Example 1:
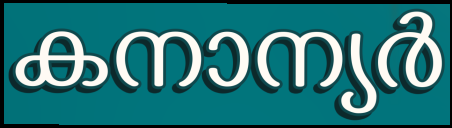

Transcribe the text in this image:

കനാന്യർ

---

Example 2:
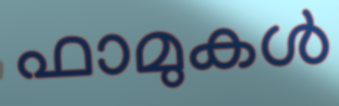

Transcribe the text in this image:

ഫാമുകൾ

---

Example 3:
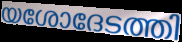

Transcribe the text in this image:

യശോദേടത്തി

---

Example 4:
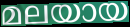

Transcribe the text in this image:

മലയായ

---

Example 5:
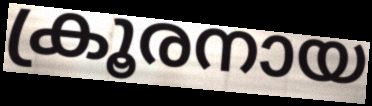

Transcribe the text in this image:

ക്രൂരനായ